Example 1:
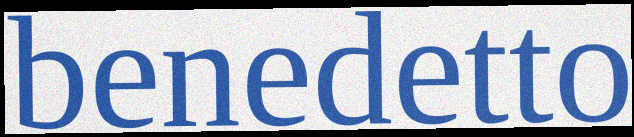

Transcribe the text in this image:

benedetto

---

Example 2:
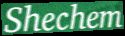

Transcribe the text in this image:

Shechem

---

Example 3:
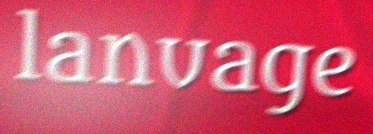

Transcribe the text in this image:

lanuage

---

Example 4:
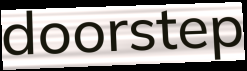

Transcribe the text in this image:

doorstep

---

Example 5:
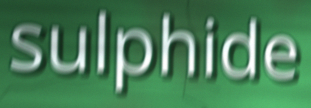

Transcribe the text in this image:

sulphide